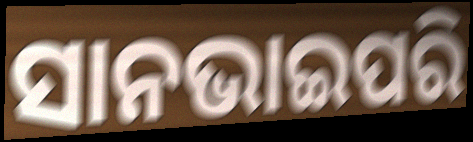
ସାନଭାଇପରି